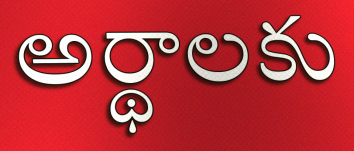
అర్థాలకు